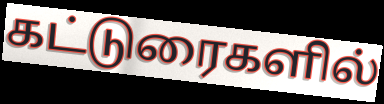
கட்டுரைகளில்